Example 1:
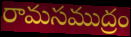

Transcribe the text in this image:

రామసముద్రం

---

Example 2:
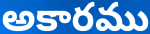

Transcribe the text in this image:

అకారము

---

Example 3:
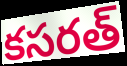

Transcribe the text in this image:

కసరత్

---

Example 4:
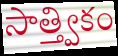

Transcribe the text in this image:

సాత్త్వికం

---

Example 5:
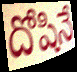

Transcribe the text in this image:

దోషినే